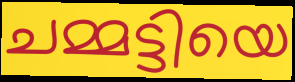
ചമ്മട്ടിയെ